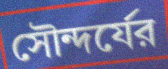
সৌন্দর্যের